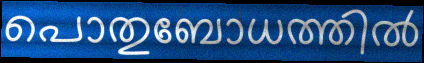
പൊതുബോധത്തിൽ